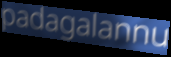
padagalannu